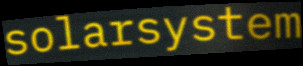
solarsystem